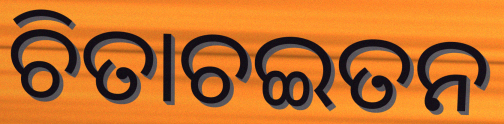
ଚିତାଚଇତନ